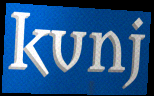
kunj